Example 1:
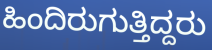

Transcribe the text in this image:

ಹಿಂದಿರುಗುತ್ತಿದ್ದರು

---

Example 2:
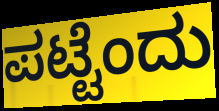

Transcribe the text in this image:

ಪಟ್ಟೆಂದು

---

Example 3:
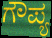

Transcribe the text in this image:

ಗೌಪ್ಯ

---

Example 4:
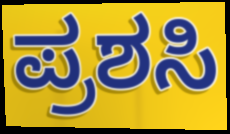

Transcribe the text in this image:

ಪ್ರಶಸಿ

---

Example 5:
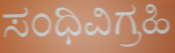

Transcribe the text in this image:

ಸಂಧಿವಿಗ್ರಹಿ